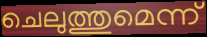
ചെലുത്തുമെന്ന്